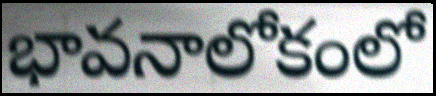
భావనాలోకంలో